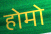
होमो